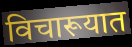
विचारूयात